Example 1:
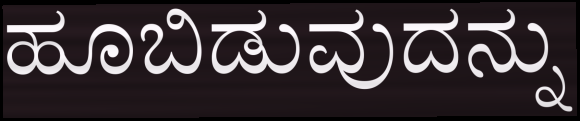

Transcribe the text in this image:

ಹೂಬಿಡುವುದನ್ನು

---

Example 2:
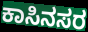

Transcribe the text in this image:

ಕಾಸಿನಸರ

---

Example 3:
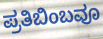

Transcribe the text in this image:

ಪ್ರತಿಬಿಂಬವೂ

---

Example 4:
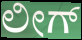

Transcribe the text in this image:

ಲೀಗ್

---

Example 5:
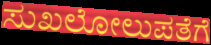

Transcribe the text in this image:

ಸುಖಲೋಲುಪತೆಗೆ